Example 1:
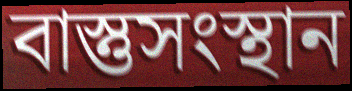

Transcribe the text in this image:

বাস্তুসংস্থান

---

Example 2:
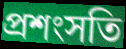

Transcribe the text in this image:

প্রশংসতি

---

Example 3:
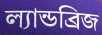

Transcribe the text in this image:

ল্যান্ডব্রিজ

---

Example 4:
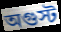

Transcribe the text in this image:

অগুস্ট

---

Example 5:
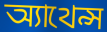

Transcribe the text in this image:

অ্যাথেন্স